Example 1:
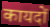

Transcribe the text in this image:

कायदों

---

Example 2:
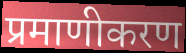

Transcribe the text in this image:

प्रमाणीकरण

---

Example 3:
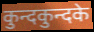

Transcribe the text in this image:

कुन्दकुन्दके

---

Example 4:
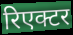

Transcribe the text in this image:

रिएक्टर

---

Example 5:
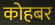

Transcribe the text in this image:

कोहबर